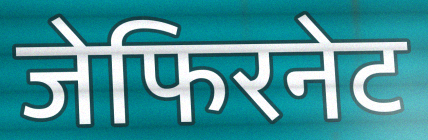
जेफिरनेट